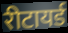
रीटायर्ड